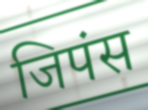
जिपंस